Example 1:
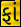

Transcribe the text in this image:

ફાં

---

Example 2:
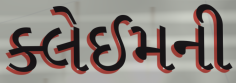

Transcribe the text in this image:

ક્લેઈમની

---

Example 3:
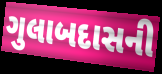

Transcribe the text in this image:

ગુલાબદાસની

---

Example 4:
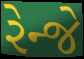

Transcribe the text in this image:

રેન્જે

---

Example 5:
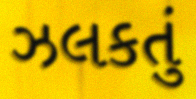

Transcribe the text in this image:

ઝલકતું